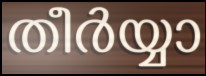
തീർയ്യാ